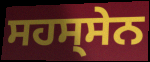
ਸਹਸ੍ਸੇਨ